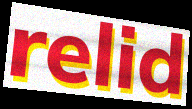
relid